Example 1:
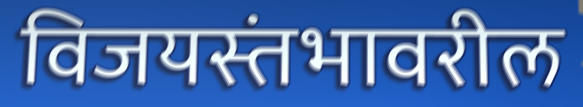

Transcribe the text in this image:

विजयस्तंभावरील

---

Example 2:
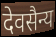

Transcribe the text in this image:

देवसैन्य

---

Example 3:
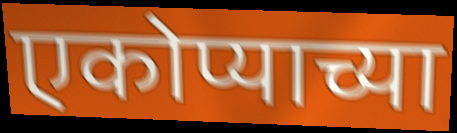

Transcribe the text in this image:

एकोप्याच्या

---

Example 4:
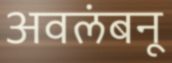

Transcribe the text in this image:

अवलंबनू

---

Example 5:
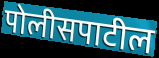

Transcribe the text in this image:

पोलीसपाटील